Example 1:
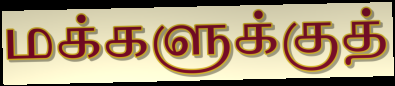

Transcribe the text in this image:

மக்களுக்குத்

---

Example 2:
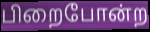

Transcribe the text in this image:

பிறைபோன்ற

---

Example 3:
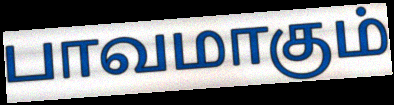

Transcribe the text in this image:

பாவமாகும்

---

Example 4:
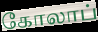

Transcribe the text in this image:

கோலாப்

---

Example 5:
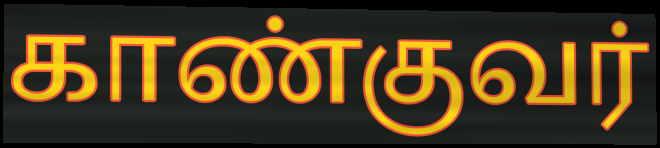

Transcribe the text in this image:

காண்குவர்